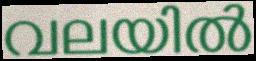
വലയിൽ